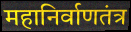
महानिर्वाणतंत्र